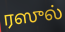
ரஸுல்